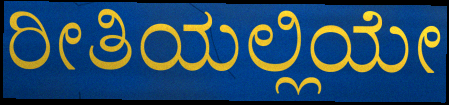
ರೀತಿಯಲ್ಲಿಯೇ